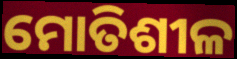
ମୋତିଶୀଳ